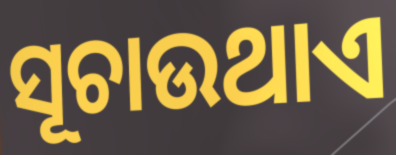
ସୂଚାଉଥାଏ